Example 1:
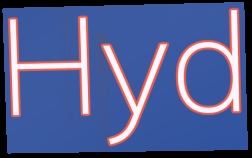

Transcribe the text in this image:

Hyd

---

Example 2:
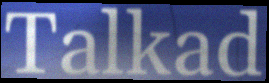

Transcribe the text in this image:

Talkad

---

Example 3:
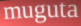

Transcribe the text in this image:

muguta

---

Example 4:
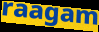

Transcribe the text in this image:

raagam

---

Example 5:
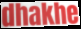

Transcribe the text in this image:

dhakhe